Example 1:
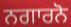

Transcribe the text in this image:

ਨਗਾਰਨੋ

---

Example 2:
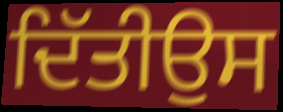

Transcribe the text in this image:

ਦਿੱਤੀਉਸ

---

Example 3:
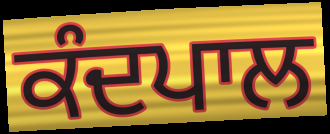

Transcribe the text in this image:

ਕੰਦਪਾਲ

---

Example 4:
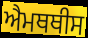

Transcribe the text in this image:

ਐਮਥਥੀਸ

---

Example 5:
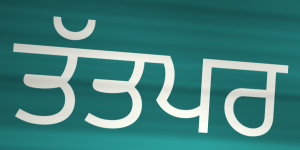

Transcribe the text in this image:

ਤੱਤਪਰ